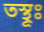
তস্থূঃ